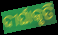
ଦୀର୍ଘାକୃତି